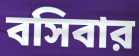
বসিবার